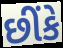
છીંકે